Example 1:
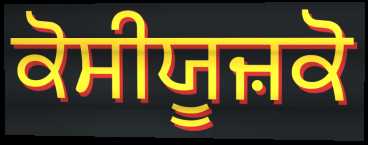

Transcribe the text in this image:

ਕੋਸੀਯੂਜ਼ਕੋ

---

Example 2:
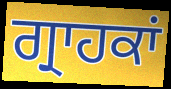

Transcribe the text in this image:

ਗ੍ਰਾਹਕਾਂ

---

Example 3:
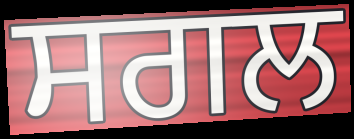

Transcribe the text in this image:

ਸਗਲ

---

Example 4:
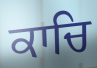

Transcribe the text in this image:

ਕਾਚਿ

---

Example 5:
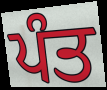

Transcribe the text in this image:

ਪੰਤ